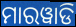
ମାରୱାଡି